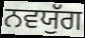
ਨਵਯੁੱਗ